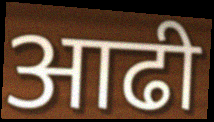
आढी